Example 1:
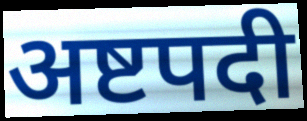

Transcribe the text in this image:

अष्टपदी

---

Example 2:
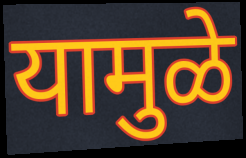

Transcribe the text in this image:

यामुळे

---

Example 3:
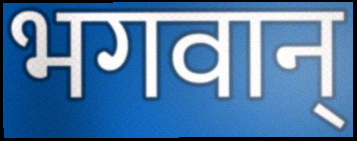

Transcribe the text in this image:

भगवान्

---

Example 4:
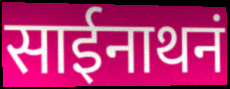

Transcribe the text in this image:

साईनाथनं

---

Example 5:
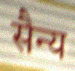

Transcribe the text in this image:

सैन्य